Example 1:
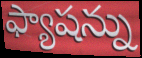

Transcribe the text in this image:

ఫ్యాషన్ను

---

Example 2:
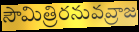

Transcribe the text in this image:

సౌమిత్రిరనువవ్రాజ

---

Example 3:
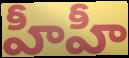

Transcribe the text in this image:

హీహీ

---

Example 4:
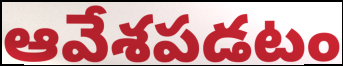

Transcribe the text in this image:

ఆవేశపడటం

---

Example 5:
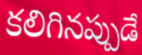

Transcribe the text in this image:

కలిగినప్పుడే